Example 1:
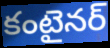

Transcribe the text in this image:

కంటైనర్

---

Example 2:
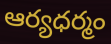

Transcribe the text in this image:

ఆర్యధర్మం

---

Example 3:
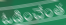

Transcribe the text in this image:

ఓడించేంత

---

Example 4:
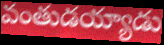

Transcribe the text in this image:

వంతుడయ్యాడు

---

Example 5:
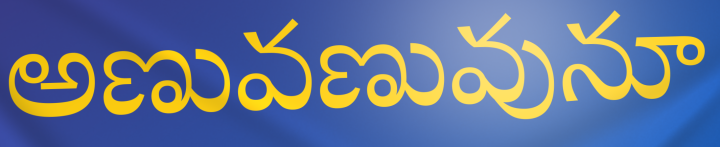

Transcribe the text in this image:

అణువణువునూ